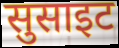
सुसाइट